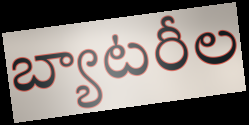
బ్యాటరీల